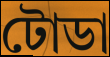
টোডা